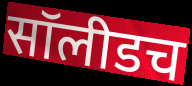
सॉलीडच